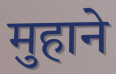
मुहाने